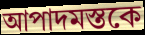
আপাদমস্তকে